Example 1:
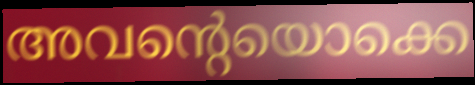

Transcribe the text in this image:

അവന്റെയൊക്കെ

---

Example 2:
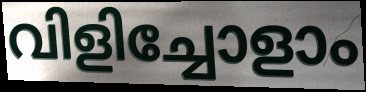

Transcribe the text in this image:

വിളിച്ചോളാം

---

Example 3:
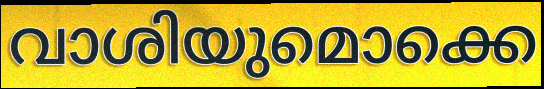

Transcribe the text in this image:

വാശിയുമൊക്കെ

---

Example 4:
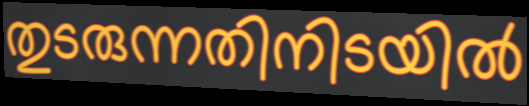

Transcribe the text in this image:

തുടരുന്നതിനിടയിൽ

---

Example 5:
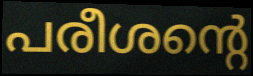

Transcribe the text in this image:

പരീശന്റെ